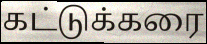
கட்டுக்கரை